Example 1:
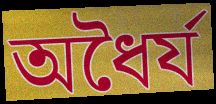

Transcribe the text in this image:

অধৈর্য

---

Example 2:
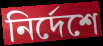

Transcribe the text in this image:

নির্দেশে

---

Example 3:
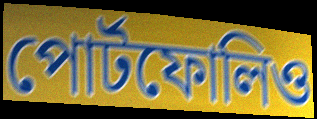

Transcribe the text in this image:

পোর্টফোলিও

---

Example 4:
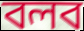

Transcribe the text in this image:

বলব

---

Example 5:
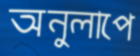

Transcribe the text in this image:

অনুলাপে